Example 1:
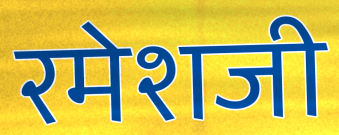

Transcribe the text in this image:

रमेशजी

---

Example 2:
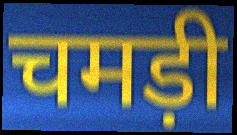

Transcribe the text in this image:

चमड़ी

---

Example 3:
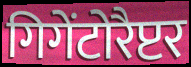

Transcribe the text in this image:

गिगेंटोरैप्टर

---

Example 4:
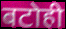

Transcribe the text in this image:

बटोही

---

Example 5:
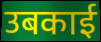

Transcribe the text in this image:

उबकाई